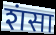
शंसा